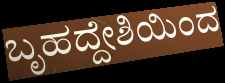
ಬೃಹದ್ದೇಶಿಯಿಂದ